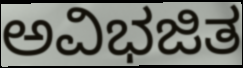
ಅವಿಭಜಿತ